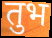
तुभ